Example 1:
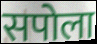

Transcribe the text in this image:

सपोला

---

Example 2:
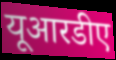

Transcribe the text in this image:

यूआरडीए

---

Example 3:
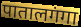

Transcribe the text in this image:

पातालगंगा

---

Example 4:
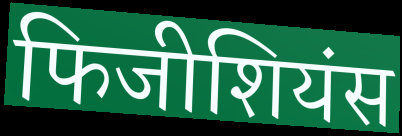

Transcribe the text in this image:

फिजीशियंस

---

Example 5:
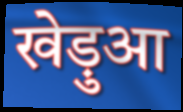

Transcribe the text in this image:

खेड़ुआ